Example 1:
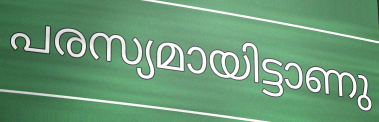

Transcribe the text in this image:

പരസ്യമായിട്ടാണു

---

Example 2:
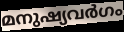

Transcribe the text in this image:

മനുഷ്യവർഗം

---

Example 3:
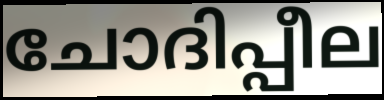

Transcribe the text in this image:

ചോദിപ്പീല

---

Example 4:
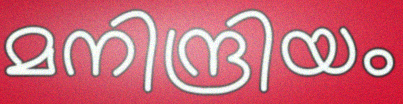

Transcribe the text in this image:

മനിന്ദ്രിയം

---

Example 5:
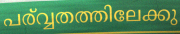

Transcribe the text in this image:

പര്വ്വതത്തിലേക്കു